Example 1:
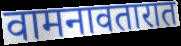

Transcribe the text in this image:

वामनावतारात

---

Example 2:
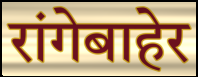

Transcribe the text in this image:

रांगेबाहेर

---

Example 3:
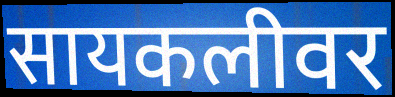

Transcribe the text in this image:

सायकलीवर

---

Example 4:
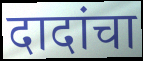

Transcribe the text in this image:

दादांचा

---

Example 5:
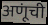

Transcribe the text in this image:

अणूंची